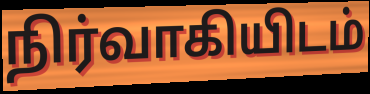
நிர்வாகியிடம்